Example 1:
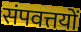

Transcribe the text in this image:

संपवत्तयों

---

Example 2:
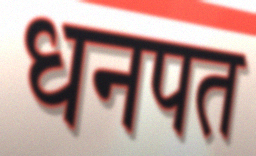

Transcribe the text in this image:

धनपत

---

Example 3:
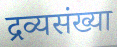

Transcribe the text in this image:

द्रव्यसंख्या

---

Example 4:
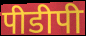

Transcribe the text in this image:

पीडीपी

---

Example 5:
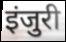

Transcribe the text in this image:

इंजुरी